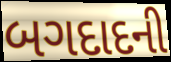
બગદાદની